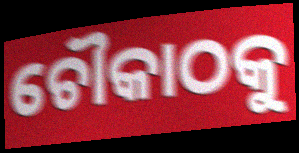
ଚୌକାଠକୁ